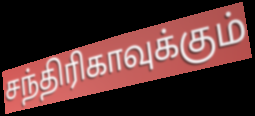
சந்திரிகாவுக்கும்